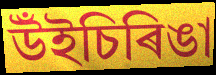
উঁইচিৰিঙা